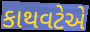
કાથવટેએ